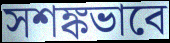
সশঙ্কভাবে